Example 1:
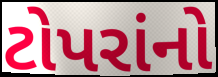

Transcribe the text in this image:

ટોપરાંનો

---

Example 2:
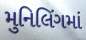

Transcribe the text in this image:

મુનિલિંગમાં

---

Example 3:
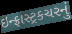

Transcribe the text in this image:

ઇન્ફ્રાસ્ટ્રકચરનું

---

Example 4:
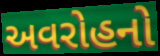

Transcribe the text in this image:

અવરોહનો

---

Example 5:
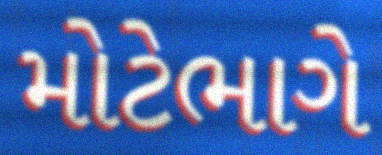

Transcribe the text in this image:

મોટેભાગે